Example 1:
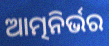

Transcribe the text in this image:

ଆତ୍ମନିର୍ଭର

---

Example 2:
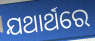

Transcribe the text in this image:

ଯଥାର୍ଥରେ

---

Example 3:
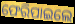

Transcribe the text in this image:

ଫେରିପାଇଲେ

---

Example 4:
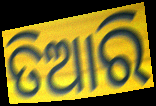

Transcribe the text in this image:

ତିଆରି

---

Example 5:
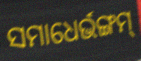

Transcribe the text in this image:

ସମାଧେର୍ଭଙ୍ଗମ୍